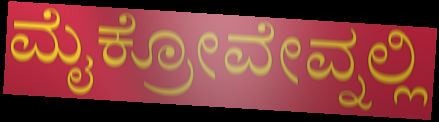
ಮೈಕ್ರೋವೇವ್ನಲ್ಲಿ